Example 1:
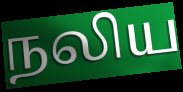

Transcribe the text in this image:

நலிய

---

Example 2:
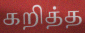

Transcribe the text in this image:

கறித்த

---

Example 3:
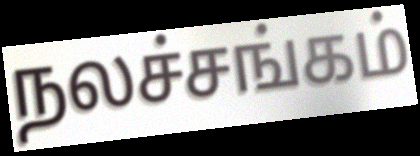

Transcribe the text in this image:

நலச்சங்கம்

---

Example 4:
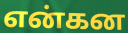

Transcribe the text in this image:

என்கன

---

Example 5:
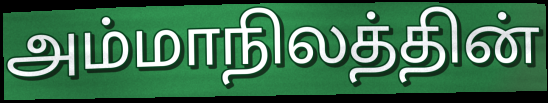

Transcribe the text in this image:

அம்மாநிலத்தின்